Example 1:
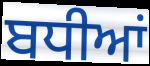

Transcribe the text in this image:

ਬਧੀਆਂ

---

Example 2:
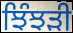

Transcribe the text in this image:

ਝਿੰਝੜੀ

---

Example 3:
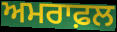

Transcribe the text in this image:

ਅਮਰਾਫ਼ਲ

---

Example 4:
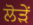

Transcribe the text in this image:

ਲੋੜੇਂ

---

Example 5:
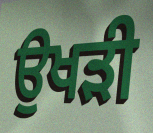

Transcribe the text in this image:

ਉਖੜੀ